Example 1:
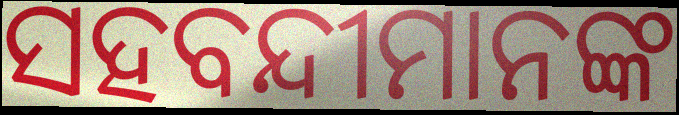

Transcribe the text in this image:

ସହବନ୍ଦୀମାନଙ୍କ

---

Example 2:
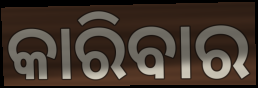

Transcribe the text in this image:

କାରିବାର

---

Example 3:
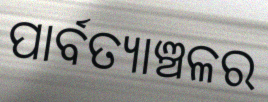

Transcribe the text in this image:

ପାର୍ବତ୍ୟାଞ୍ଚଳର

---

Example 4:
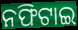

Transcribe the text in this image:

ନଫିଟାଇ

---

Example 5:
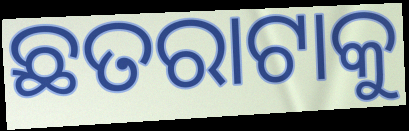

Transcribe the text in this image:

ଛତରାଟାକୁ